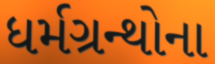
ધર્મગ્રન્થોના